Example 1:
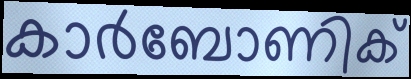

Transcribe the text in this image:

കാർബോണിക്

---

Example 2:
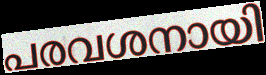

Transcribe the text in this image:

പരവശനായി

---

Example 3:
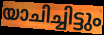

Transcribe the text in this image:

യാചിച്ചിട്ടും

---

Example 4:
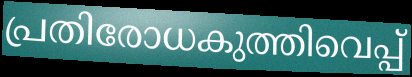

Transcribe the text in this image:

പ്രതിരോധകുത്തിവെപ്പ്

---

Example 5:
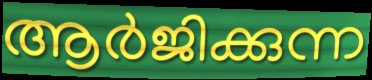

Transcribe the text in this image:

ആർജിക്കുന്ന